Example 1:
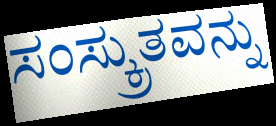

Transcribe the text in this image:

ಸಂಸ್ಕ್ರುತವನ್ನು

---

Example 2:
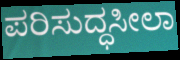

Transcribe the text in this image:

ಪರಿಸುದ್ಧಸೀಲಾ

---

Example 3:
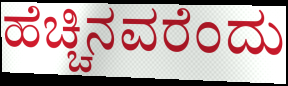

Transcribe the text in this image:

ಹೆಚ್ಚಿನವರೆಂದು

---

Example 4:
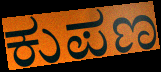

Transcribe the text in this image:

ಕುಪಣ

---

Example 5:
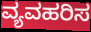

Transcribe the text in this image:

ವ್ಯವಹರಿಸ